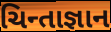
ચિન્તાજ્ઞાન